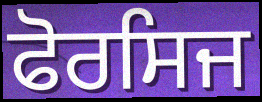
ਫੋਰਸਿਜ